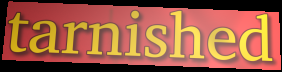
tarnished